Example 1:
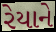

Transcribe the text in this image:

રેયાને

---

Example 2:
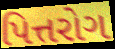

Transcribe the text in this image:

પિત્તરોગ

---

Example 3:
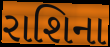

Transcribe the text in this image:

રાશિના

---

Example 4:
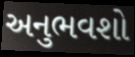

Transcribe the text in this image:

અનુભવશો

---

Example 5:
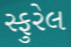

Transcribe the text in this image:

સ્ફુરેલ